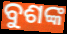
ବୁଶଙ୍କ